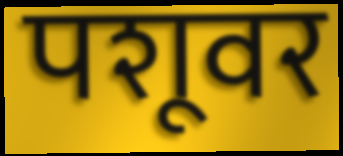
पशूवर